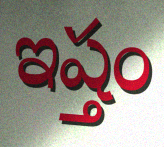
ఇష్తం